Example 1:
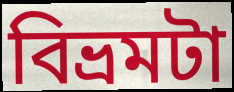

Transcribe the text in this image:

বিভ্রমটা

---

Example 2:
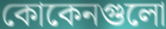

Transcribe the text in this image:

কোকেনগুলো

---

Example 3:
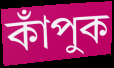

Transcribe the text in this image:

কাঁপুক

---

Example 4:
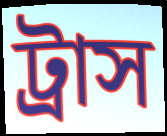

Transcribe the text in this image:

ট্রাস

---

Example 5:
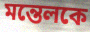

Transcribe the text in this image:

মন্তেলকে